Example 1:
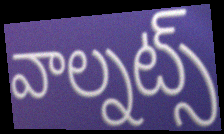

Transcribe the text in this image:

వాల్నట్స్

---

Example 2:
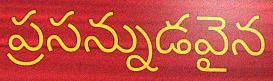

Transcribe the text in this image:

ప్రసన్నుడవైన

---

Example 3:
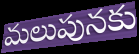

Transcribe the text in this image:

మలుపునకు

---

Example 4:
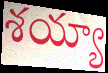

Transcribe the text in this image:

శయ్యా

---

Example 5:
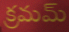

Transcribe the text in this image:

క్రమమ్